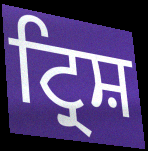
ਟ੍ਰਿਸ਼